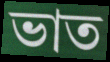
ভাত